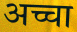
अच्चा